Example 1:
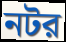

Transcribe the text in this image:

নটর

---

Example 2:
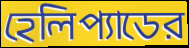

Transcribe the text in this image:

হেলিপ্যাডের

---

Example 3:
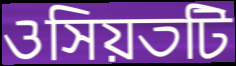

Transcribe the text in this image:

ওসিয়তটি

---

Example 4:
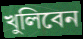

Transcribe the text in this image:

খুলিবেন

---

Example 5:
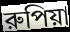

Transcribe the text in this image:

রুপিয়া